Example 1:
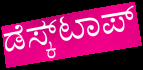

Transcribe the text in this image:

ಡೆಸ್ಕ್‌ಟಾಪ್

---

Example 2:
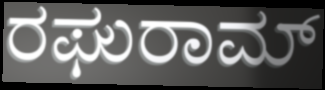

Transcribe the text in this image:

ರಘುರಾಮ್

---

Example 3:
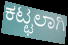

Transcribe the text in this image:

ಕಟ್ಟಲಾಗಿ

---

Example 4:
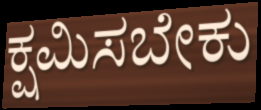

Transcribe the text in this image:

ಕ್ಷಮಿಸಬೇಕು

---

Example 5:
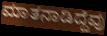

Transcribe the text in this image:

ಮಾತನಾಡಿದ್ದೆವು